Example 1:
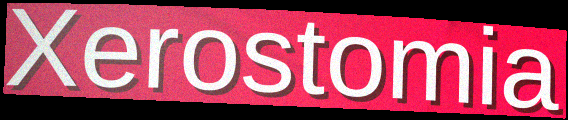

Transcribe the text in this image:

Xerostomia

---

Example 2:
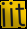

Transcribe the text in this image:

iit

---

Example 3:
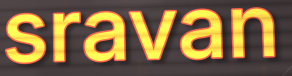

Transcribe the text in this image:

sravan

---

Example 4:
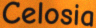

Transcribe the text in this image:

Celosia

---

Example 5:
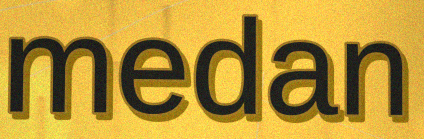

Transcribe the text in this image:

medan